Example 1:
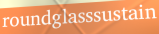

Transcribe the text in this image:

roundglasssustain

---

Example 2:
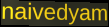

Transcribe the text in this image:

naivedyam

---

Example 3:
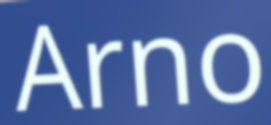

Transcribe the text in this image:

Arno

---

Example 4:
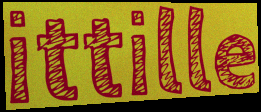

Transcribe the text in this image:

ittille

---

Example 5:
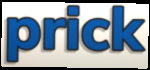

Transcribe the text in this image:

prick